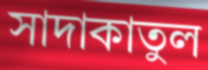
সাদাকাতুল